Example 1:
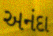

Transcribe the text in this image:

અનંદા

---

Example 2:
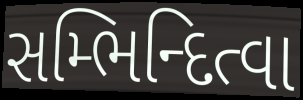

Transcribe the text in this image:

સમ્ભિન્દિત્વા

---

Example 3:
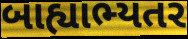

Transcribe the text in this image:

બાહ્યાભ્યતર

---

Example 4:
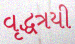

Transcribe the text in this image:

વૃદ્ધત્રયી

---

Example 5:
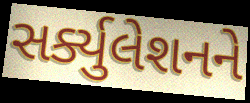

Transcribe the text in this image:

સર્ક્યુલેશનને